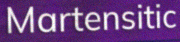
Martensitic